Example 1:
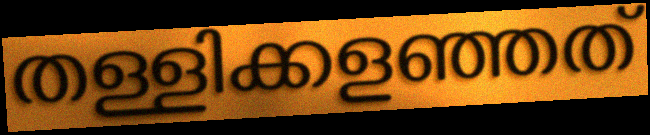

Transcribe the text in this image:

തള്ളിക്കളഞ്ഞത്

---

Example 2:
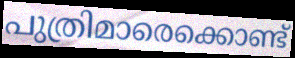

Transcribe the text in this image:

പുത്രിമാരെക്കൊണ്ട്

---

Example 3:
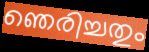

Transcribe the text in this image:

ഞെരിച്ചതും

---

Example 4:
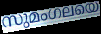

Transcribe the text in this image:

സുമംഗലയെ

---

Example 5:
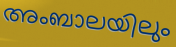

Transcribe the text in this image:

അംബാലയിലും